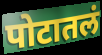
पोटातलं